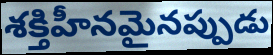
శక్తిహీనమైనప్పుడు